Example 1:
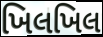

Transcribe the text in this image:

ખિલખિલ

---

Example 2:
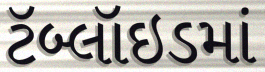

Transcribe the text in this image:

ટૅબ્લૉઇડમાં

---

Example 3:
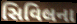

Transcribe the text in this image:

સિવિલના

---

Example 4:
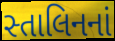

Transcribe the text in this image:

સ્તાલિનનાં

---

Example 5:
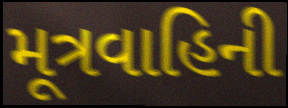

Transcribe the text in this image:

મૂત્રવાહિની